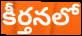
కీర్తనలో